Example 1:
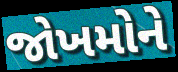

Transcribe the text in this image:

જોખમોને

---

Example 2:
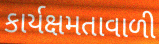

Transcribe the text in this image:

કાર્યક્ષમતાવાળી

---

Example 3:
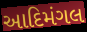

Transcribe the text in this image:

આદિમંગલ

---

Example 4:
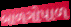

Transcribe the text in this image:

બાળગોપાળ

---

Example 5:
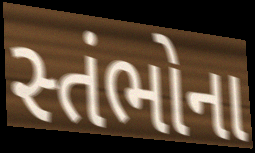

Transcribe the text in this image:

સ્તંભોના